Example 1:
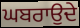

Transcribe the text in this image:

ਘਬਰਾਉਦੇ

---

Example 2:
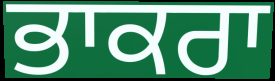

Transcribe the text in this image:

ਭਾਕਰਾ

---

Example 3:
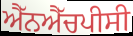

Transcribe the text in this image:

ਐੱਨਐੱਚਪੀਸੀ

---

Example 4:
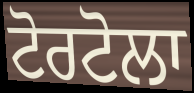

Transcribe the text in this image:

ਟੋਰਟੋਲਾ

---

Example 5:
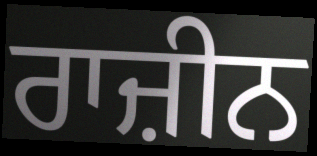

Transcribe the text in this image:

ਰਾਜ਼ੀਨ